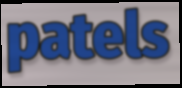
patels